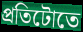
প্ৰতিটোতে